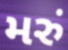
મરું